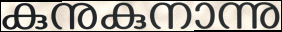
കുനുകുനാന്നു